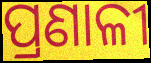
ପ୍ରଣାଳୀ